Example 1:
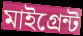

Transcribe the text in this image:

মাইগ্রেন্ট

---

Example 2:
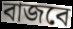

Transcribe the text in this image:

বাজবে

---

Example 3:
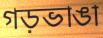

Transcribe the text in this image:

গড়ভাঙা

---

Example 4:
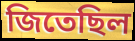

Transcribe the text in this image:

জিতেছিল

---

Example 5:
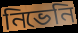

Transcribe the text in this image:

নিভেনি